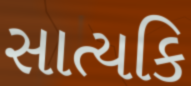
સાત્યકિ